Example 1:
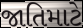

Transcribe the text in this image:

જાતિમાટે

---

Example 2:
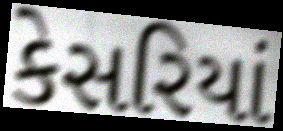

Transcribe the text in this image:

કેસરિયાં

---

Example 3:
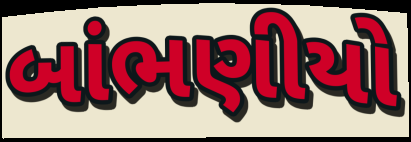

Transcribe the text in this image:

બાંભણીયો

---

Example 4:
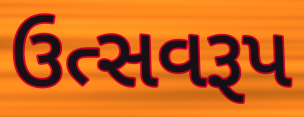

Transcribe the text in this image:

ઉત્સવરૂપ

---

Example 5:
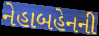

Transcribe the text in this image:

નેહાબહેનની